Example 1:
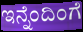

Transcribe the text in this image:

ಇನ್ನೆಂದಿಂಗೆ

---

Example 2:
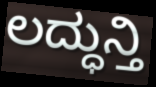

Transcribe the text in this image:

ಲದ್ಧುನ್ತಿ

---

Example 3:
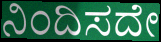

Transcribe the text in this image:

ನಿಂದಿಸದೇ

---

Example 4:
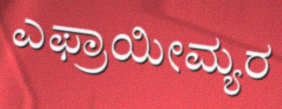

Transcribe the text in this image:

ಎಫ್ರಾಯೀಮ್ಯರ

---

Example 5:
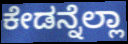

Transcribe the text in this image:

ಕೇಡನ್ನೆಲ್ಲಾ